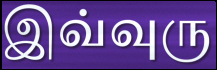
இவ்வுரு